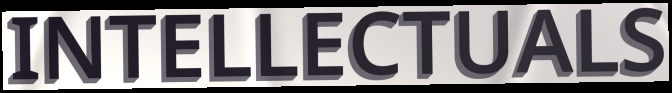
INTELLECTUALS